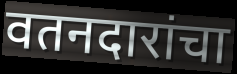
वतनदारांचा